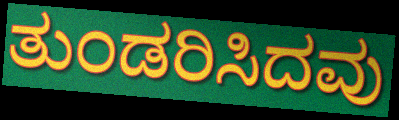
ತುಂಡರಿಸಿದವು